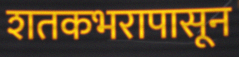
शतकभरापासून